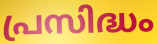
പ്രസിദ്ധം